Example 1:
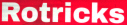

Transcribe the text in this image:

Rotricks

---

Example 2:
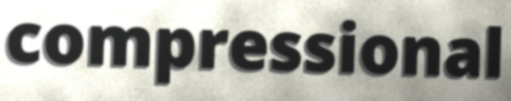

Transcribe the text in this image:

compressional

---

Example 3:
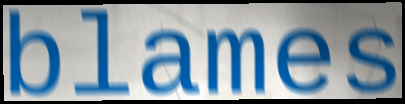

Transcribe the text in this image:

blames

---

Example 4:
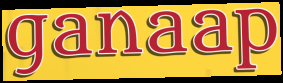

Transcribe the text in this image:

ganaap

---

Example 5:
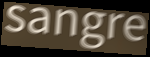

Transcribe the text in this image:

sangre